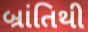
બ્રાંતિથી